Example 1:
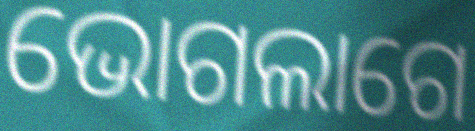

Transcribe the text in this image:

ଭୋଗଲାଗେ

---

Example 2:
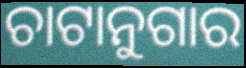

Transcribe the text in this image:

ଚାଟାନୁଗାର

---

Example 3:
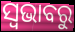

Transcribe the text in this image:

ସ୍ଵଭାବରୁ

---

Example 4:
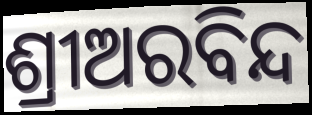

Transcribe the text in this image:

ଶ୍ରୀଅରବିନ୍ଦ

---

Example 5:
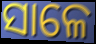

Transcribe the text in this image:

ସାଳେ